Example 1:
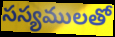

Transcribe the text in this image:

సస్యములతో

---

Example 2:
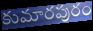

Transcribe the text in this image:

కుమారపురం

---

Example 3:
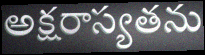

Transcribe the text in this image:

అక్షరాస్యతను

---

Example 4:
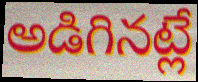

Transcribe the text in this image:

అడిగినట్లే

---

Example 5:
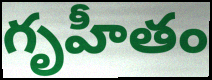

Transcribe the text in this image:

గృహీతం